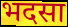
भदसा